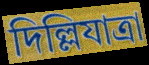
দিল্লিযাত্রা